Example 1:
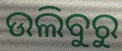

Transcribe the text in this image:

ଉଲିବୁରୁ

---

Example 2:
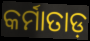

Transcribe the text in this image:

କର୍ମାତାଡ଼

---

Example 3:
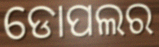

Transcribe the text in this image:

ଡୋପଲର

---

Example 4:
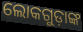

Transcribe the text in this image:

ଲୋକଗୁଡ଼ାଙ୍କ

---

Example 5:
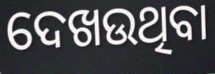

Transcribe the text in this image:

ଦେଖଉଥିବା